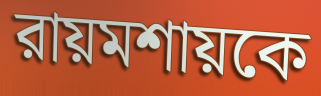
রায়মশায়কে